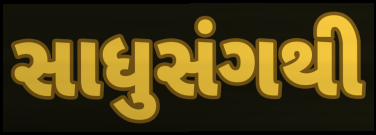
સાધુસંગથી